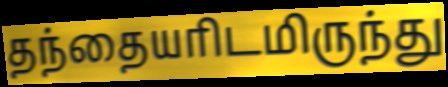
தந்தையரிடமிருந்து